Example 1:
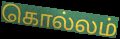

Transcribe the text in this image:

கொல்லம்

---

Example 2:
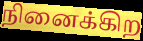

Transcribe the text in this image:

நினைக்கிற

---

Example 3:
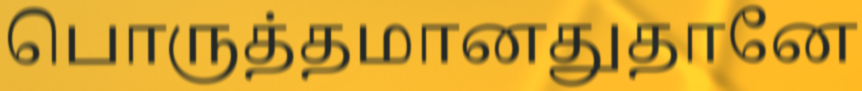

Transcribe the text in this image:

பொருத்தமானதுதானே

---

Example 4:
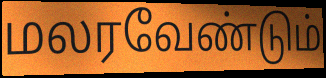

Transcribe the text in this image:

மலரவேண்டும்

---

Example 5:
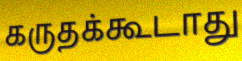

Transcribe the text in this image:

கருதக்கூடாது